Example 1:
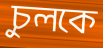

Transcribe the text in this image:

চুলকে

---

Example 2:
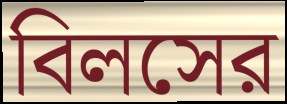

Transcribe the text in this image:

বিলসের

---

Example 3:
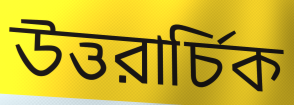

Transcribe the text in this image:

উত্তরার্চিক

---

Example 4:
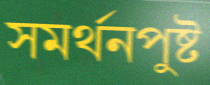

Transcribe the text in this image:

সমর্থনপুষ্ট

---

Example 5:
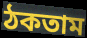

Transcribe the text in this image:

ঠকতাম